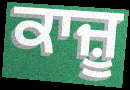
ਕਾਜ਼ੂ